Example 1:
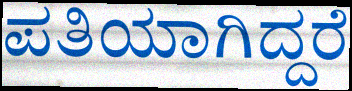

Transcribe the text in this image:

ಪತಿಯಾಗಿದ್ದರೆ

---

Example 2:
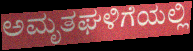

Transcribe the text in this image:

ಅಮೃತಘಳಿಗೆಯಲ್ಲಿ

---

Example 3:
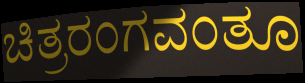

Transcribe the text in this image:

ಚಿತ್ರರಂಗವಂತೂ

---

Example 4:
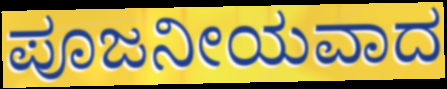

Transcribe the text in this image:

ಪೂಜನೀಯವಾದ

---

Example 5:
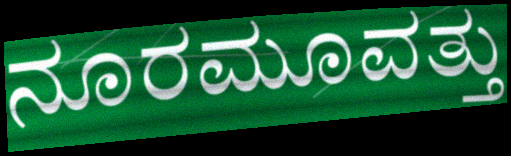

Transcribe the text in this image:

ನೂರಮೂವತ್ತು